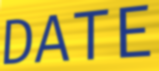
DATE